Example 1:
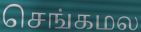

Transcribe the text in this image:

செங்கமல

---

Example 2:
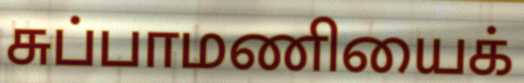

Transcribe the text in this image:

சுப்பாமணியைக்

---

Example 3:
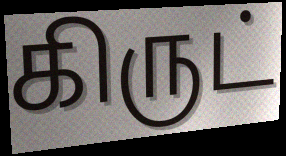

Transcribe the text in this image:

கிருட்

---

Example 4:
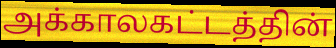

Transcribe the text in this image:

அக்காலகட்டத்தின்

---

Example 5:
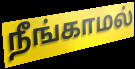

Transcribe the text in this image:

நீங்காமல்